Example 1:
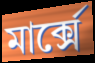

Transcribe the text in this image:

মাৰ্ক্সে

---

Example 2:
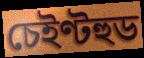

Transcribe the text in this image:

চেইণ্টহুড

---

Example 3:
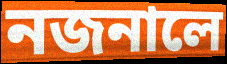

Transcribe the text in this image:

নজনালে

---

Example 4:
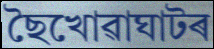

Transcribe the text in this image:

ছৈখোৱাঘাটৰ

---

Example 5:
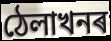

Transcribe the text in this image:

ঠেলাখনৰ